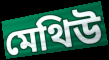
মেথিউ